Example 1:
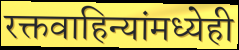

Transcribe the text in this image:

रक्तवाहिन्यांमध्येही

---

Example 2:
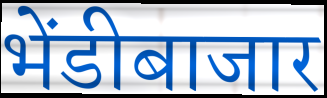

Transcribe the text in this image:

भेंडीबाजार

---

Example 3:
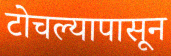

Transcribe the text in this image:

टोचल्यापासून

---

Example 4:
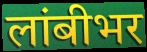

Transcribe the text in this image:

लांबीभर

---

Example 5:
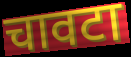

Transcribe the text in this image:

चावटा